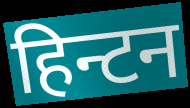
हिन्टन